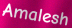
Amalesh